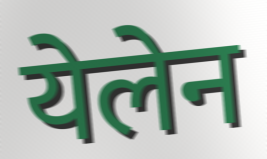
येलेन